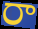
రా